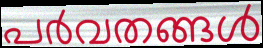
പർവതങ്ങൾ